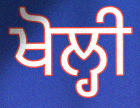
ਖੋਲ੍ਹੀ